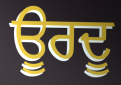
ਊਰਦੂ